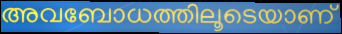
അവബോധത്തിലൂടെയാണ്